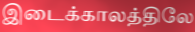
இடைக்காலத்திலே